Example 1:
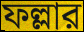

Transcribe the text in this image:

ফল্লার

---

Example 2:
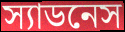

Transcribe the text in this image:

স্যাডনেস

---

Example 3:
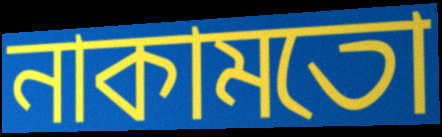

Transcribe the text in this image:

নাকামতো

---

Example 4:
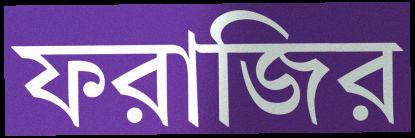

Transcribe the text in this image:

ফরাজির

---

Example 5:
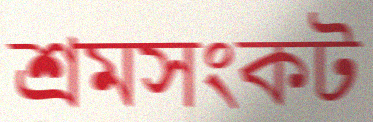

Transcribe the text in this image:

শ্রমসংকট